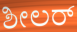
ಶೀಲರ್